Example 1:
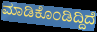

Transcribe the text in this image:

ಮಾಡಿಕೊಂಡಿದ್ದಿದೆ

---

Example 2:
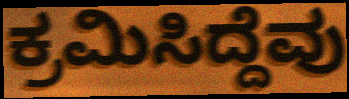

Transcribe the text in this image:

ಕ್ರಮಿಸಿದ್ದೆವು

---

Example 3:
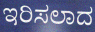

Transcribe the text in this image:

ಇರಿಸಲಾದ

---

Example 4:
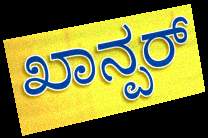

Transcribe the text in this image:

ಖಾನ್ಪರ್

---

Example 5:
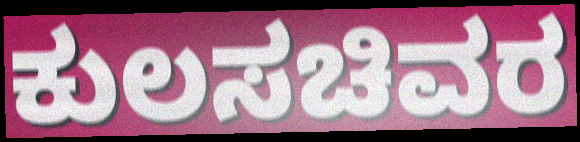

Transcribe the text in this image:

ಕುಲಸಚಿವರ